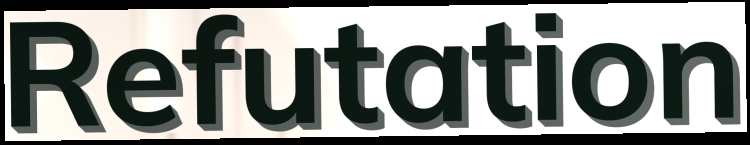
Refutation